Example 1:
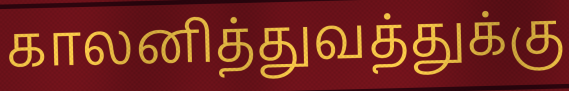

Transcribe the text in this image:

காலனித்துவத்துக்கு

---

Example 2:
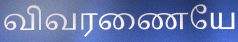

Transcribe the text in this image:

விவரணையே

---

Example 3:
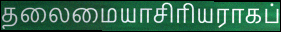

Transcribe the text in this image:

தலைமையாசிரியராகப்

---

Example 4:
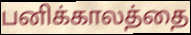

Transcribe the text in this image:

பனிக்காலத்தை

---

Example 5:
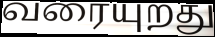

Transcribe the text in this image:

வரையுறது